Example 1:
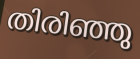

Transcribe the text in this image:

തിരിഞ്ഞു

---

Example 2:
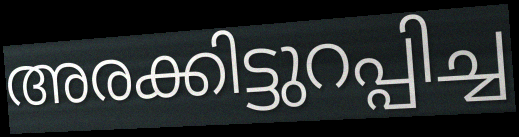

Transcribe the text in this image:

അരക്കിട്ടുറപ്പിച്ച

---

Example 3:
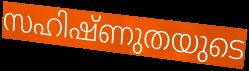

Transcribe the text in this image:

സഹിഷ്ണുതയുടെ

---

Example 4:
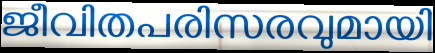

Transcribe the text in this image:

ജീവിതപരിസരവുമായി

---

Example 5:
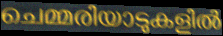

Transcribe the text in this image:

ചെമ്മരിയാടുകളിൽ